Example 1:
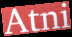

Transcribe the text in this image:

Atni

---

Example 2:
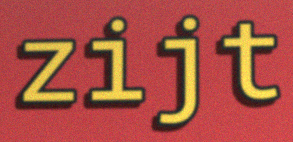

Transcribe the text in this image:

zijt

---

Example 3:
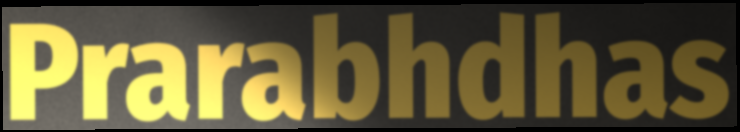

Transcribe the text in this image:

Prarabhdhas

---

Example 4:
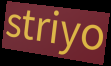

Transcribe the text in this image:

striyo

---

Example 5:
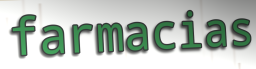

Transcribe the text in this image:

farmacias